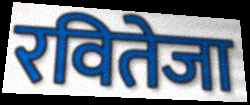
रवितेजा